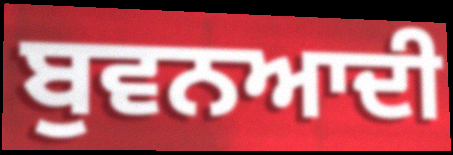
ਬੁਵਨਆਦੀ